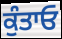
ਕੁੰਤਾਓ